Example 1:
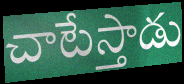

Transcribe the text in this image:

చాటేస్తాడు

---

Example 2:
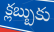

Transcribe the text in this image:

క్లబ్బుకు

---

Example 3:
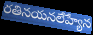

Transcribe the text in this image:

రతినయనలేహ్యేన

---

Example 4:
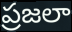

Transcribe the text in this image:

ప్రజలా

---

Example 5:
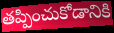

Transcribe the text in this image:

తప్పించుకోడానికి